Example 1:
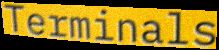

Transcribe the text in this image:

Terminals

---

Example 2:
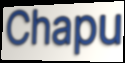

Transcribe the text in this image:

Chapu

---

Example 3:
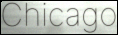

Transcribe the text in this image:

Chicago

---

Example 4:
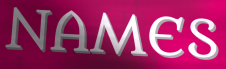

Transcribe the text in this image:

NAMES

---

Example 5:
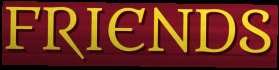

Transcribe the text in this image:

FRIENDS